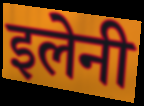
इलेनी